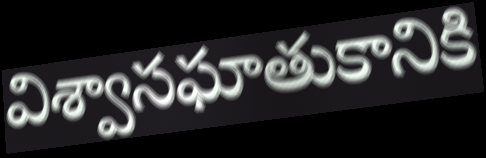
విశ్వాసఘాతుకానికి